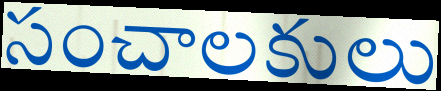
సంచాలకులు